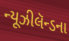
ન્યૂઝીલૅન્ડના